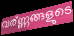
വര്ണ്ണങ്ങളുടെ